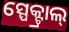
ସ୍ପେକ୍ଟ୍ରାଲ୍